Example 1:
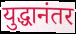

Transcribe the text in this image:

युद्धानंतर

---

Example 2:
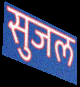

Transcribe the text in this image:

सुजल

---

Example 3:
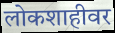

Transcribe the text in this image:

लोकशाहीवर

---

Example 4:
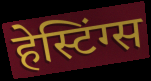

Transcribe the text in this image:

हेस्टिंग्स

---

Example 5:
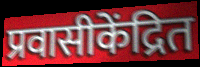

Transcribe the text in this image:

प्रवासीकेंद्रित